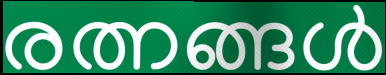
രത്നങ്ങൾ